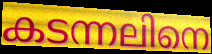
കടന്നലിനെ